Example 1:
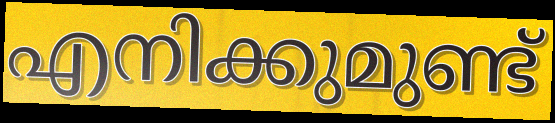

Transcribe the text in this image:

എനിക്കുമുണ്ട്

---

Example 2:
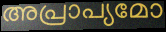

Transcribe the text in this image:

അപ്രാപ്യമോ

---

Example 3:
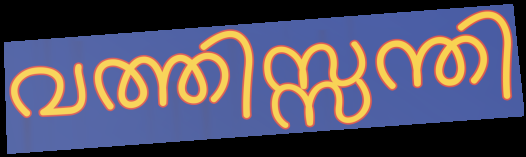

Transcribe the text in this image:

വത്തിസ്സന്തി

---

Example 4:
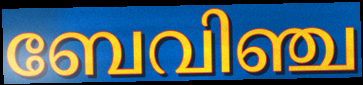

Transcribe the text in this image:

ബേവിഞ്ച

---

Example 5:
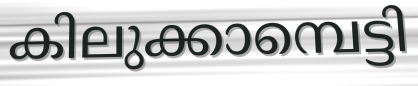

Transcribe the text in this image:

കിലുക്കാമ്പെട്ടി